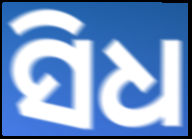
ସିଧ